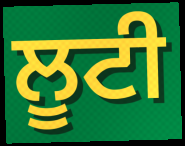
ਲੂਟੀ